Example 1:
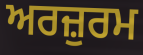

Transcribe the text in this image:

ਅਰਜ਼ੁਰਮ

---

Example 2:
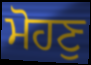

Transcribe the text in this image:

ਮੋਹਣੁ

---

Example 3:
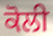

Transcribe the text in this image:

ਕੋਲੀ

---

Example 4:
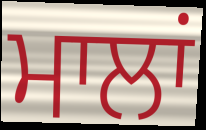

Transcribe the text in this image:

ਮਾਲਾਂ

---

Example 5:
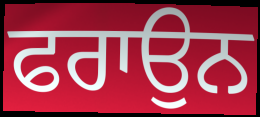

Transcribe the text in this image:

ਫਰਾਉਨ